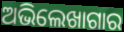
ଅଭିଲେଖାଗାର